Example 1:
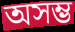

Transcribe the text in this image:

অসম্ভ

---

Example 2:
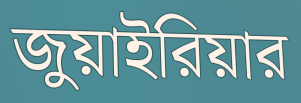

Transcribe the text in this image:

জুয়াইরিয়ার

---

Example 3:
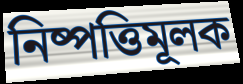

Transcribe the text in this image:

নিষ্পত্তিমূলক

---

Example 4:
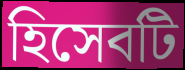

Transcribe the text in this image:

হিসেবটি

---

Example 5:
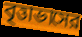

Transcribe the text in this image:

বৃত্তাভাসের